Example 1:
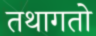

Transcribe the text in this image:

तथागतो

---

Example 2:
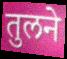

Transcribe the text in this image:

तुलने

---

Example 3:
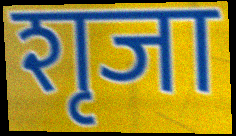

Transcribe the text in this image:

शृजा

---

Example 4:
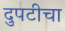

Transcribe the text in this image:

दुपटीचा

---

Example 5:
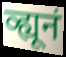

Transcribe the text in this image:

व्ह्यूनं